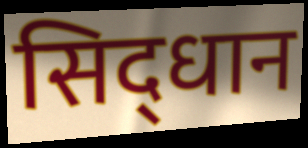
सिद्धान